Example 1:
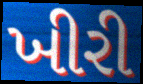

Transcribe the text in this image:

ખીરી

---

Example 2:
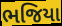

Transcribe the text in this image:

ભજિયા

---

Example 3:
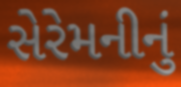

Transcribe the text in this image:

સેરેમનીનું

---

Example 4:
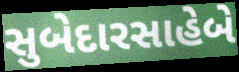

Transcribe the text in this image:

સુબેદારસાહેબે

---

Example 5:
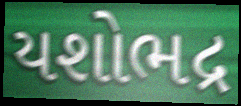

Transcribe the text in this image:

યશોભદ્ર